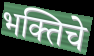
भक्तिचे